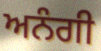
ਅਨੰਗੀ